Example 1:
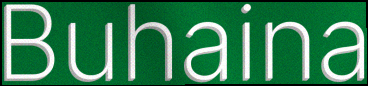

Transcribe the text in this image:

Buhaina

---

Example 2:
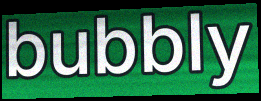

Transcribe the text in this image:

bubbly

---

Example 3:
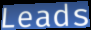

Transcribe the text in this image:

Leads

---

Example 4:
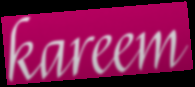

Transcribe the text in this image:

kareem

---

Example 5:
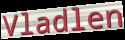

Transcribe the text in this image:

Vladlen